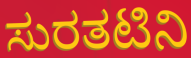
ಸುರತಟಿನಿ